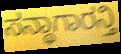
ಸನ್ಥಾಗಾರನ್ತಿ